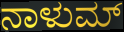
ನಾಳುಮ್